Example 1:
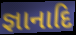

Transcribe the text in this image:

જ્ઞાનાદિ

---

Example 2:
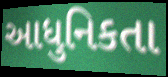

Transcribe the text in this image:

આધુનિકતા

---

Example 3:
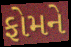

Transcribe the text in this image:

ફોમને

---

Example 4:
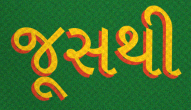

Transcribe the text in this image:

જૂસથી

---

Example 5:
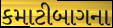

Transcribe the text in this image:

કમાટીબાગના